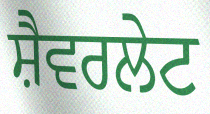
ਸ਼ੈਵਰਲੇਟ